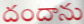
దందాను